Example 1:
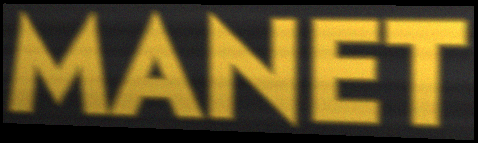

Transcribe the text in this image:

MANET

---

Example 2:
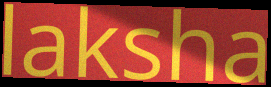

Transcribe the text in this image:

laksha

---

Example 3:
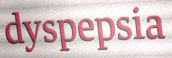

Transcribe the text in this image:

dyspepsia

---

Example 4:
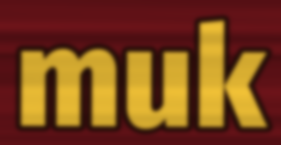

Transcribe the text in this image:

muk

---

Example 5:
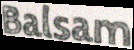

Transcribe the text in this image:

Balsam